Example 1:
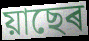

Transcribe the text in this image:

য়াছেৰ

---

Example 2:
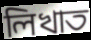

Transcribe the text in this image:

লিখাত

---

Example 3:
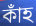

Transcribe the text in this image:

কাঁহ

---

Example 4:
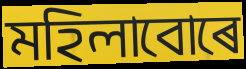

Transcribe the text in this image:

মহিলাবোৰে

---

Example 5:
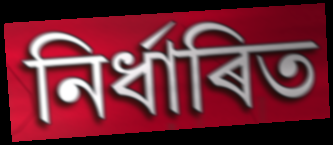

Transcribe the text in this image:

নিৰ্ধাৰিত